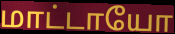
மாட்டாயோ